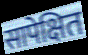
सापेक्षित